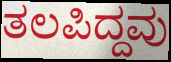
ತಲಪಿದ್ದವು